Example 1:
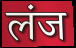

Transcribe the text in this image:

लंज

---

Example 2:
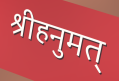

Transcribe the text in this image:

श्रीहनुमत्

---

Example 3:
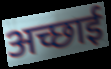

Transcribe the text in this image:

अच्छाई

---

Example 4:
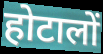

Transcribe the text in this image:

होटालों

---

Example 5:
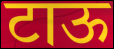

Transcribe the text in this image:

टाऊ